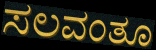
ಸಲವಂತೂ